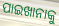
ପାଇଖାନାକୁ